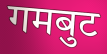
गमबुट